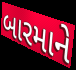
બારમાને